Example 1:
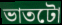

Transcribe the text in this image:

ভাতটো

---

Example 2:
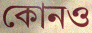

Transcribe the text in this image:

কোনও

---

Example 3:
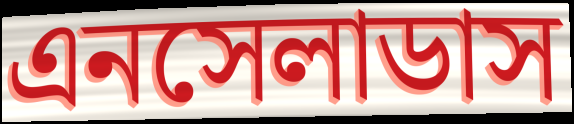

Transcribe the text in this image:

এনসেলাডাস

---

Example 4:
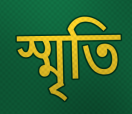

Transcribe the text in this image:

স্মৃতি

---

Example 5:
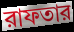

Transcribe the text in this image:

রাফতার